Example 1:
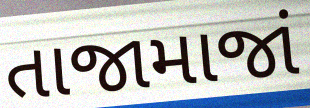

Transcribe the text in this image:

તાજામાજાં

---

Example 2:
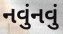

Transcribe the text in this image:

નવુંનવું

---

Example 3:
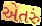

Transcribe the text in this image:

એતરું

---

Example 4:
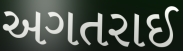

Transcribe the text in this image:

અગતરાઈ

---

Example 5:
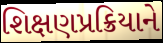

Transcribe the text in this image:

શિક્ષણપ્રક્રિયાને